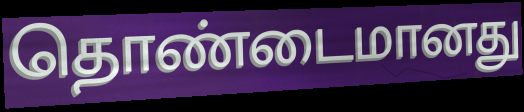
தொண்டைமானது